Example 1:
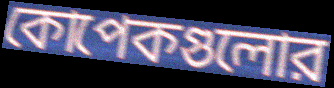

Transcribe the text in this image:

কোপেকগুলোর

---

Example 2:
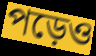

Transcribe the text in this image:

পড়েও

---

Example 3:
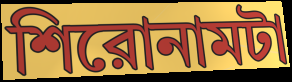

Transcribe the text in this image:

শিরোনামটা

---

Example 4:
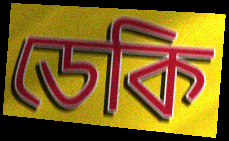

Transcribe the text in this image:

ডেকি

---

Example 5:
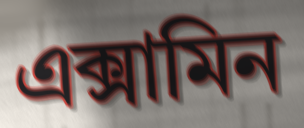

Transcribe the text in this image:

এক্সামিন